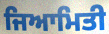
ਜਿਆਮਿਤੀ